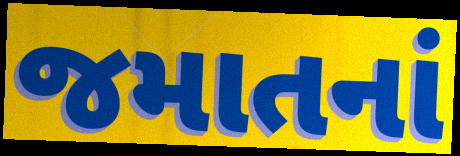
જમાતનાં